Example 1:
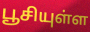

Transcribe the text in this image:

பூசியுள்ள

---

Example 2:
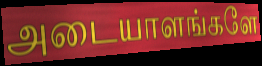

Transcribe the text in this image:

அடையாளங்களே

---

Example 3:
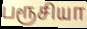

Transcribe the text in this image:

பரூசியா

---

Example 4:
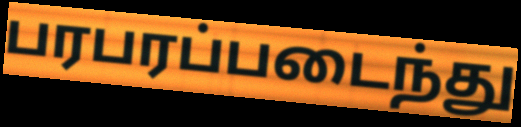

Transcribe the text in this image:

பரபரப்படைந்து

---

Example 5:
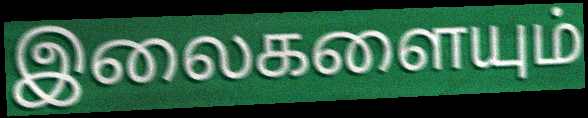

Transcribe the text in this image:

இலைகளையும்